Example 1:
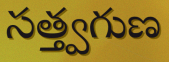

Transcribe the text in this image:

సత్త్వగుణ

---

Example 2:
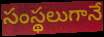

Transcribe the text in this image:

సంస్థలుగానే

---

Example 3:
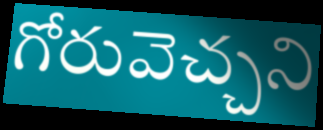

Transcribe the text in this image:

గోరువెచ్చని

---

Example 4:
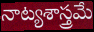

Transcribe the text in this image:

నాట్యశాస్త్రమే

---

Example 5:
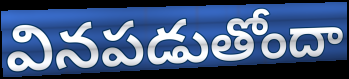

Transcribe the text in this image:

వినపడుతోందా